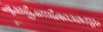
കൂലിപ്പണിക്കാരനും